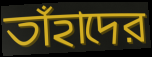
তাঁহাদের